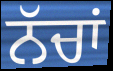
ਨੱਚਾਂ